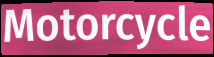
Motorcycle